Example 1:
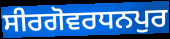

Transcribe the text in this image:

ਸੀਰਗੋਵਰਧਨਪੁਰ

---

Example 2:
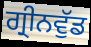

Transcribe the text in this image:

ਗ੍ਰੀਨਵੁੱਡ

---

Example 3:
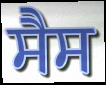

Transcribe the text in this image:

ਸੈਸ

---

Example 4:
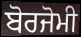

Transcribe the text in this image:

ਬੋਰਜੋਮੀ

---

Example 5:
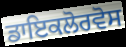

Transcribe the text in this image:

ਡਾਇਕਲੋਰਵੋਸ